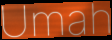
Umah